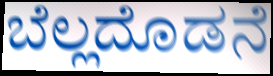
ಬೆಲ್ಲದೊಡನೆ